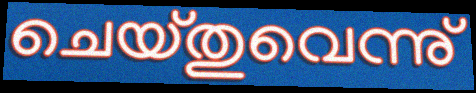
ചെയ്തുവെന്നു്